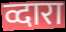
व्दारा